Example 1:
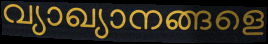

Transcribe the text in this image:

വ്യാഖ്യാനങ്ങളെ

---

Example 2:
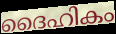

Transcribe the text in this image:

ദൈഹികം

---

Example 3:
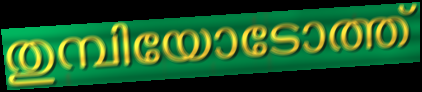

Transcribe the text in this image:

തുമ്പിയോടോത്ത്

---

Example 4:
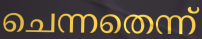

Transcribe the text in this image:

ചെന്നതെന്ന്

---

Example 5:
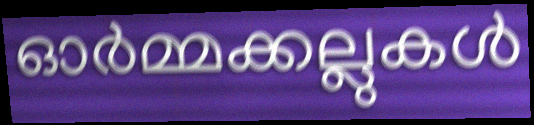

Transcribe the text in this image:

ഓർമ്മക്കല്ലുകൾ